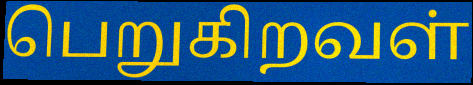
பெறுகிறவள்